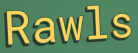
Rawls